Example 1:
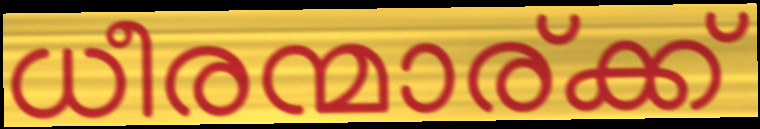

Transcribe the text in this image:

ധീരന്മാര്ക്ക്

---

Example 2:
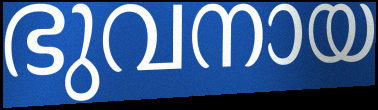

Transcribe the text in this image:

ഭുവനായ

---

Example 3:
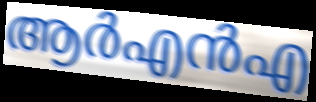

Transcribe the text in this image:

ആർഎൻഎ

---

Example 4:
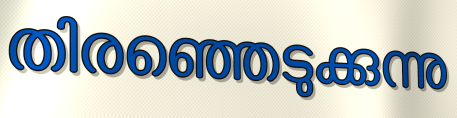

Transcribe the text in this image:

തിരഞ്ഞെടുക്കുന്നു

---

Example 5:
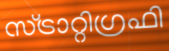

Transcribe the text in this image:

സ്ട്രാറ്റിഗ്രഫി